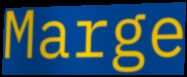
Marge